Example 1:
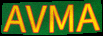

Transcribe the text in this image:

AVMA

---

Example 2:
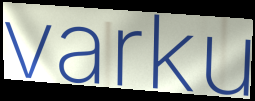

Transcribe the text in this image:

varku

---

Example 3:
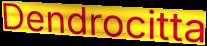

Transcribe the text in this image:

Dendrocitta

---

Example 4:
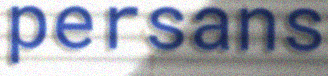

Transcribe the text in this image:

persans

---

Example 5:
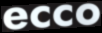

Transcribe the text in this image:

ecco